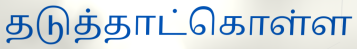
தடுத்தாட்கொள்ள